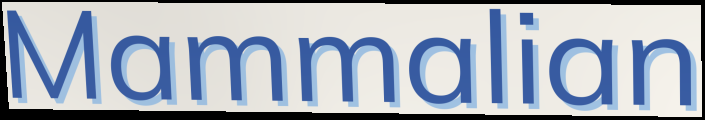
Mammalian